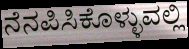
ನೆನಪಿಸಿಕೊಳ್ಳುವಲ್ಲಿ